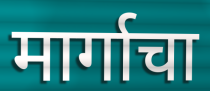
मार्गाचा